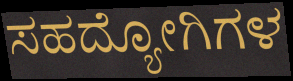
ಸಹದ್ಯೋಗಿಗಳ